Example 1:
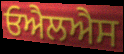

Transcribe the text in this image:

ਓਐਲਐਸ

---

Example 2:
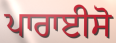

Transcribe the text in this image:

ਪਾਰਾਈਸੋ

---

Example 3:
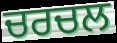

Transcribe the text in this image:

ਚਰਚਲ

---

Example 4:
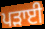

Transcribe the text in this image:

ਪੜਾਈ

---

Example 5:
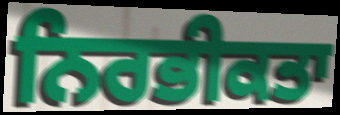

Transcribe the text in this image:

ਨਿਰਭੀਕਤਾ